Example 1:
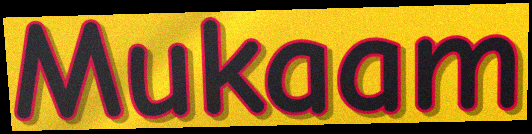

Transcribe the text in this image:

Mukaam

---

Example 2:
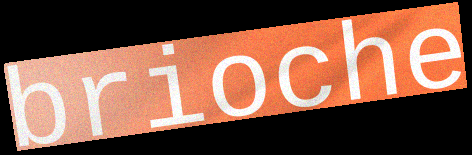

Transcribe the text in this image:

brioche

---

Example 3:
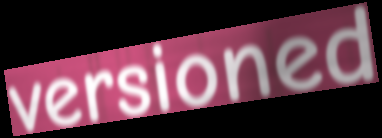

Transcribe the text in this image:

versioned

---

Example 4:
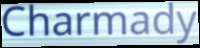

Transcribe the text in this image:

Charmady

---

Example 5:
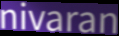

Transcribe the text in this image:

nivaran